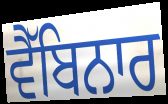
ਵੈੱਬਿਨਾਰ